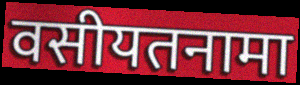
वसीयतनामा